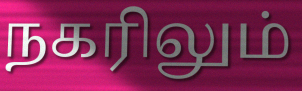
நகரிலும்